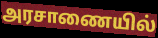
அரசாணையில்